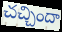
చచ్చిందా